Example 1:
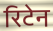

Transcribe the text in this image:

रिटेन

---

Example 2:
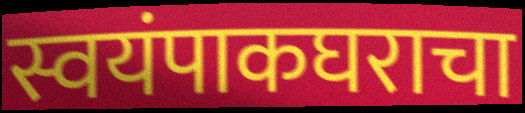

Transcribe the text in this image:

स्वयंपाकघराचा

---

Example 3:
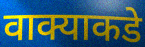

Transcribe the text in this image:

वाक्याकडे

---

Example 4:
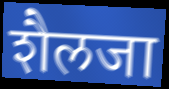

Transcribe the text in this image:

शैलजा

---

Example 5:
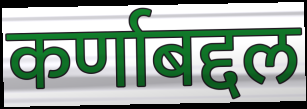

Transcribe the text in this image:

कर्णाबद्दल